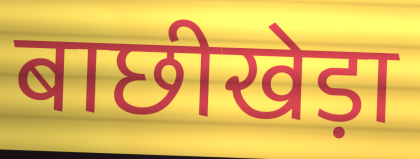
बाछीखेड़ा